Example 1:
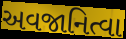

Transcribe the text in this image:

અવજાનિત્વા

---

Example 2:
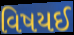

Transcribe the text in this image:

વિષયઈ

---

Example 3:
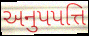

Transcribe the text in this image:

અનુપપત્તિ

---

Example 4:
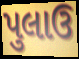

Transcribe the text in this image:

પુલાઉ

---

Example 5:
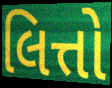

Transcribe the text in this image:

લિત્તો